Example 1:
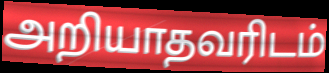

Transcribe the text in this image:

அறியாதவரிடம்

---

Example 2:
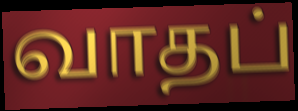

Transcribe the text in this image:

வாதப்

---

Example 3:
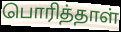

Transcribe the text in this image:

பொரித்தாள்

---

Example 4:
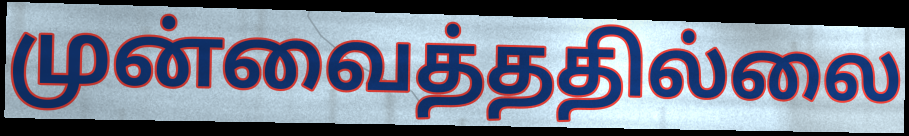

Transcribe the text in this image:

முன்வைத்ததில்லை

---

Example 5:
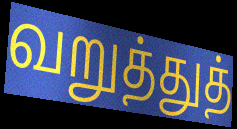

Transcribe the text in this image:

வறுத்துத்